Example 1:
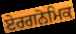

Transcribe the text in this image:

ਏਰਗਨੋਮਿਕ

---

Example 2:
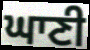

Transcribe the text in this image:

ਘਾਣੀ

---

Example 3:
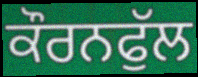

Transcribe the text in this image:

ਕੌਰਨਫੁੱਲ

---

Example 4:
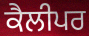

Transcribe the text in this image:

ਕੈਲੀਪਰ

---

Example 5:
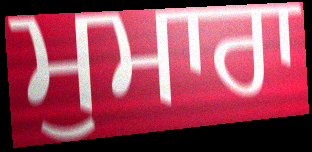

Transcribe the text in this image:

ਮੁਮਾਰਾ